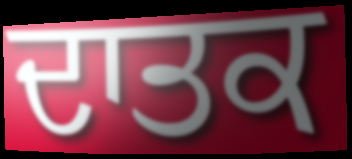
ਦਾਤਕ